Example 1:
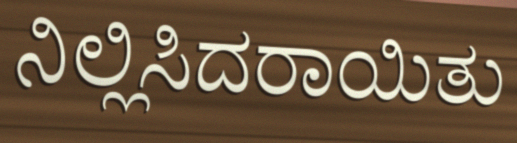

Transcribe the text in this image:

ನಿಲ್ಲಿಸಿದರಾಯಿತು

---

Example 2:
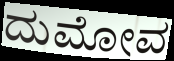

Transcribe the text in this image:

ದುಮೋವ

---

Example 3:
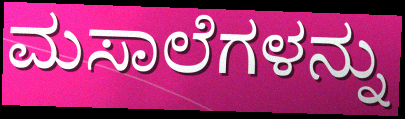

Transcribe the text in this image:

ಮಸಾಲೆಗಳನ್ನು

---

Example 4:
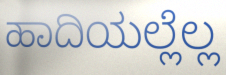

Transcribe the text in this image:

ಹಾದಿಯಲ್ಲೆಲ್ಲ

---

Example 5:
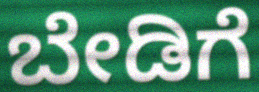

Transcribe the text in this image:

ಬೇಡಿಗೆ